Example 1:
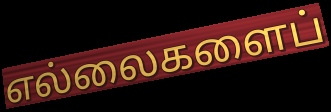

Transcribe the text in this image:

எல்லைகளைப்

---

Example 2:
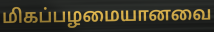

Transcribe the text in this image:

மிகப்பழமையானவை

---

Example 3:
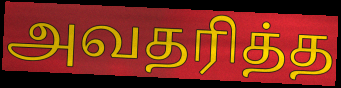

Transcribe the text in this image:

அவதரித்த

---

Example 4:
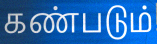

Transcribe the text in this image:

கண்படும்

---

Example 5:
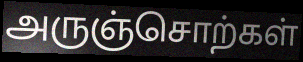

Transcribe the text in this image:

அருஞ்சொற்கள்